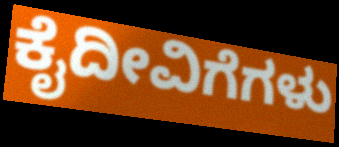
ಕೈದೀವಿಗೆಗಳು